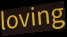
loving